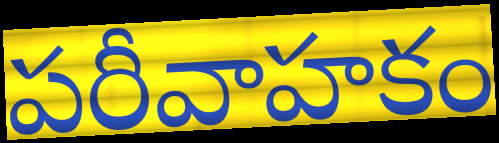
పరీవాహకం